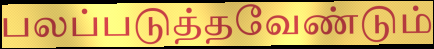
பலப்படுத்தவேண்டும்